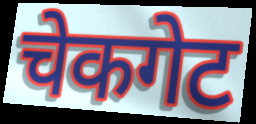
चेकगेट